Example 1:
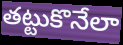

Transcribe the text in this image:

తట్టుకొనేలా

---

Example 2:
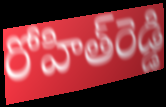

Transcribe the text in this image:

రోహిత్‌రెడ్డి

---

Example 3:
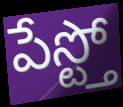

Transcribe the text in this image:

పేస్ట్తో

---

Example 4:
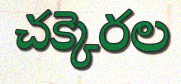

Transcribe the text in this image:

చక్కెరల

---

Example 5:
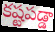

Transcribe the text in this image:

కష్టపడ్డా